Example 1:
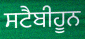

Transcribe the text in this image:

ਸਟੈਬੀਹੂਨ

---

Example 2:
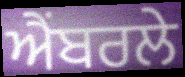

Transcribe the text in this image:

ਐਂਬਰਲੇ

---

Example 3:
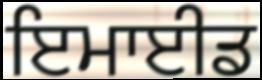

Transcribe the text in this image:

ਇਮਾਈਡ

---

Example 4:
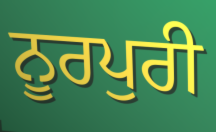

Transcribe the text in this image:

ਨੂਰਪੁਰੀ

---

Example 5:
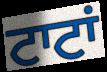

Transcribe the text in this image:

ਟਾਟਾਂ